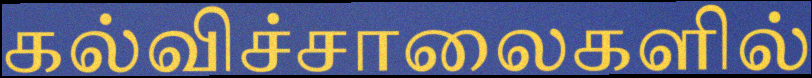
கல்விச்சாலைகளில்